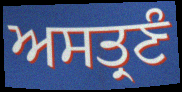
ਅਸਤ੍ਰਣੰ